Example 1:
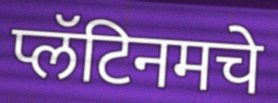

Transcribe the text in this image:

प्लॅटिनमचे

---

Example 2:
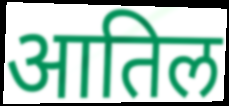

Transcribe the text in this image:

आतिल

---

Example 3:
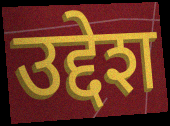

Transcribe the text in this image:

उद्देश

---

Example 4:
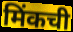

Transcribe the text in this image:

मिंकची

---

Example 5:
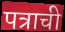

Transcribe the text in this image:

पत्राची